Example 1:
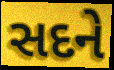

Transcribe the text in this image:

સદને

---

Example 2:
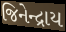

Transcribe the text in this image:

જિનેન્દ્રાય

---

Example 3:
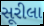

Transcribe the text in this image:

સૂરીલા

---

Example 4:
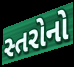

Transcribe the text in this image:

સ્તરોનો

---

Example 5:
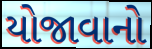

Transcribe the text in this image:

યોજાવાનો